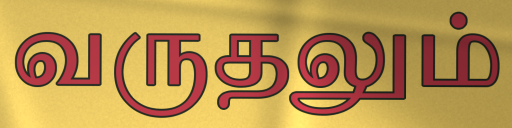
வருதலும்